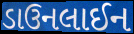
ડાઉનલાઈન